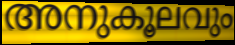
അനുകൂലവും